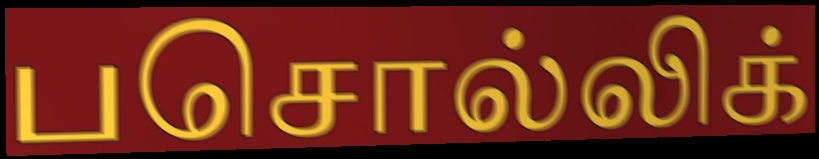
பசொல்லிக்